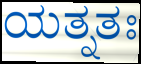
ಯತ್ನತಃ